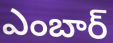
ఎంబార్